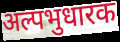
अल्पभुधारक